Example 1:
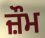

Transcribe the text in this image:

ਜ਼ੌਮ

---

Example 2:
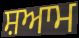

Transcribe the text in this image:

ਸ਼ਆਮ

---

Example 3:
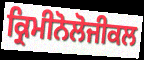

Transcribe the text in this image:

ਕ੍ਰਿਮੀਨੋਲੋਜੀਕਲ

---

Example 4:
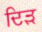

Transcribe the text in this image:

ਦਿੜ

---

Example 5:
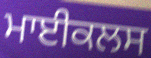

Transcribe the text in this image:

ਮਾਈਕਲਸ